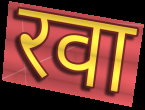
रवा